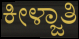
ಕೀಳ್ಜಾತಿ